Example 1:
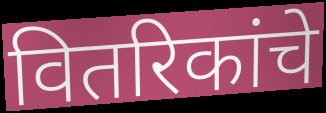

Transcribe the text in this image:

वितरिकांचे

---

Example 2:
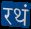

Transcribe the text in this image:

रथं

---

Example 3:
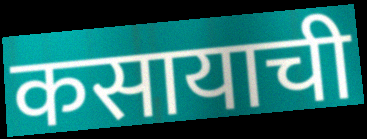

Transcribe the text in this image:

कसायाची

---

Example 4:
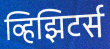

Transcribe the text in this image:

व्हिझिटर्स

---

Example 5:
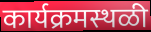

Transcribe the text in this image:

कार्यक्रमस्थळी